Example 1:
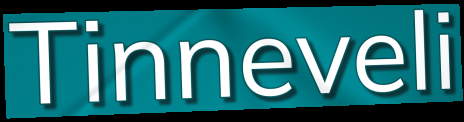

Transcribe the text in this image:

Tinneveli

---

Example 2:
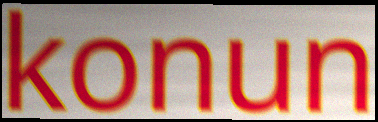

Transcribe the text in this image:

konun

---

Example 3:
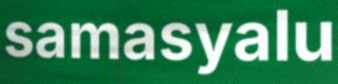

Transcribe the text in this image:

samasyalu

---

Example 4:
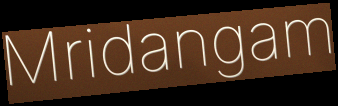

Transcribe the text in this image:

Mridangam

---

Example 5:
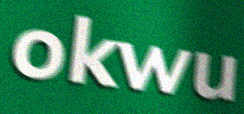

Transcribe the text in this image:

okwu